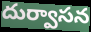
దుర్వాసన